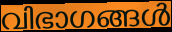
വിഭാഗങ്ങൾ